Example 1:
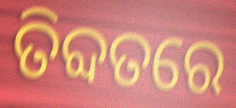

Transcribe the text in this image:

ତିବ୍ଦତରେ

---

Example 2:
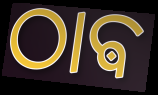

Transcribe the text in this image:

ଠାଵ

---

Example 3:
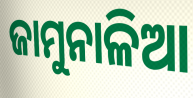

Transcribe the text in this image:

ଜାମୁନାଳିଆ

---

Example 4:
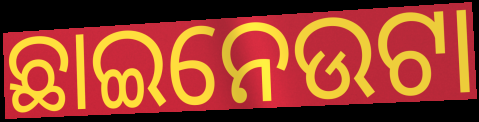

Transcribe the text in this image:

ଛାଇନେଉଟା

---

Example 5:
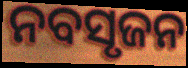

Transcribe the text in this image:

ନବସୃଜନ